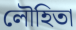
লৌহিতা